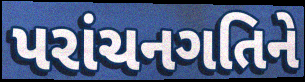
પરાંચનગતિને